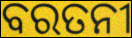
ବରତନୀ